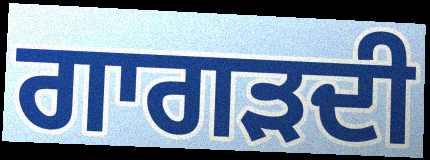
ਗਾਗੜਦੀ